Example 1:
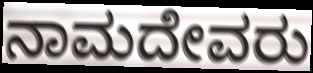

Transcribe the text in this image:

ನಾಮದೇವರು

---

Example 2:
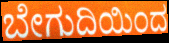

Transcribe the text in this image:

ಬೇಗುದಿಯಿಂದ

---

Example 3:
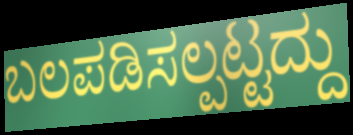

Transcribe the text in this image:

ಬಲಪಡಿಸಲ್ಪಟ್ಟದ್ದು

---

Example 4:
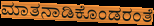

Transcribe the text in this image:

ಮಾತನಾಡಿಕೊಂಡರಂತೆ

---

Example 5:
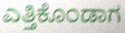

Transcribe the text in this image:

ಎತ್ತಿಕೊಂಡಾಗ